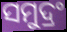
ସମୁଦ୍ରଂ